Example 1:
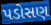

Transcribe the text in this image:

પડોસણ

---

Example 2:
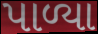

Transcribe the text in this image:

પાળ્યા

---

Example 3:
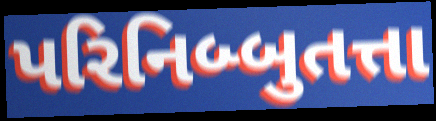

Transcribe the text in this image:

પરિનિબ્બુતત્તા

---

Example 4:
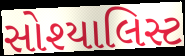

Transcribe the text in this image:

સોશ્યાલિસ્ટ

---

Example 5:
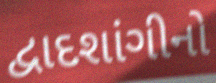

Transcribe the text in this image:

દ્વાદશાંગીનો